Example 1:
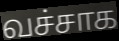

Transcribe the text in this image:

வச்சாக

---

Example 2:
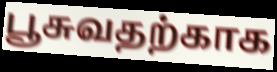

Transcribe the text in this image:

பூசுவதற்காக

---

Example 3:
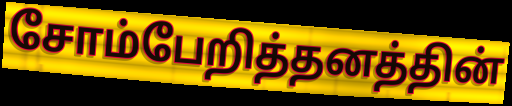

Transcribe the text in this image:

சோம்பேறித்தனத்தின்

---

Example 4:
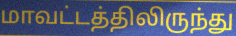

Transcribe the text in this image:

மாவட்டத்திலிருந்து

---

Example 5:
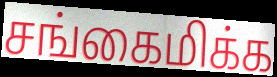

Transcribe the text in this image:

சங்கைமிக்க